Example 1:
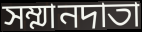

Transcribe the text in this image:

সম্মানদাতা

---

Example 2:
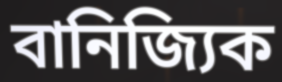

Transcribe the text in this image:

বানিজ্যিক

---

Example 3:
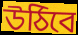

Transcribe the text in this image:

উঠিবে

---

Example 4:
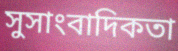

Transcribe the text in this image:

সুসাংবাদিকতা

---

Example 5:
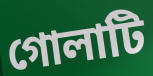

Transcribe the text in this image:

গোলাটি